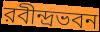
রবীন্দ্রভবন